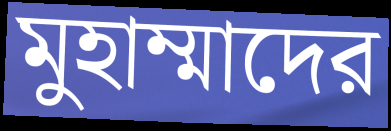
মুহাম্মাদের